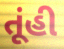
તૂંહી